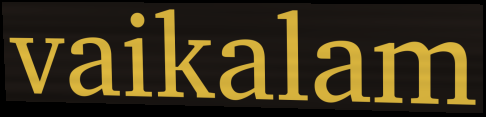
vaikalam